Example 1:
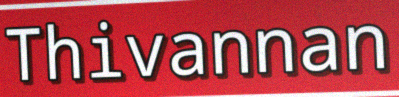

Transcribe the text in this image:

Thivannan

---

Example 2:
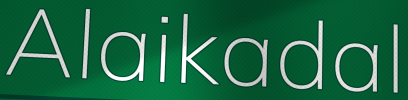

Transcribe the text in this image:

Alaikadal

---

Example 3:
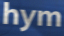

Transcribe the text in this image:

hym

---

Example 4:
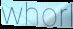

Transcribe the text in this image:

whorl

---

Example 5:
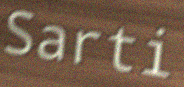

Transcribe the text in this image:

Sarti